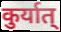
कुर्यात्